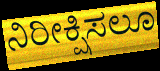
ನಿರೀಕ್ಷಿಸಲೂ